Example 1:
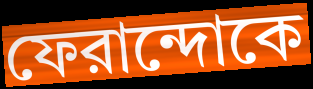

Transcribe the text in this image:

ফেরান্দোকে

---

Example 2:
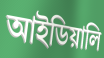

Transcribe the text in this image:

আইডিয়ালি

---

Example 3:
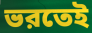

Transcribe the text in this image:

ভরতেই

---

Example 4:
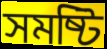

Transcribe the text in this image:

সমষ্টি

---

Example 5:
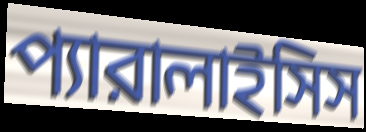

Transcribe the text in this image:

প্যারালাইসিস